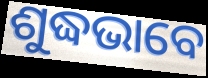
ଶୁଦ୍ଧଭାବେ